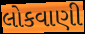
લોકવાણી